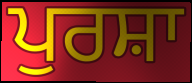
ਪੁਰਸ਼ਾ